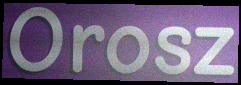
Orosz